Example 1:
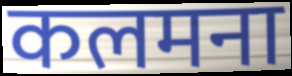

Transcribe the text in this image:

कलमना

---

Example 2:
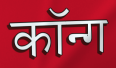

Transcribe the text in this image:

कॉन्ग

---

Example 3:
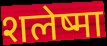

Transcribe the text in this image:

शलेष्मा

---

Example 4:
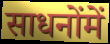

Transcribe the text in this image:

साधनोंमें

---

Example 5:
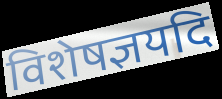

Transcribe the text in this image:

विशेषज्ञयदि